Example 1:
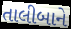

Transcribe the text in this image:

તાલીબાને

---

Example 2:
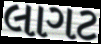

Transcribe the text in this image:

લાગટ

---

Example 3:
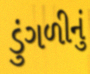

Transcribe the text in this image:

ડુંગળીનું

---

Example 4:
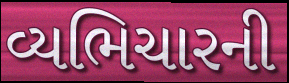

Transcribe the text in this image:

વ્યભિચારની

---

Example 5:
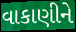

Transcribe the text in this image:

વાકાણીને